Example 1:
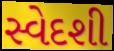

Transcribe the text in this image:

સ્વેદશી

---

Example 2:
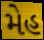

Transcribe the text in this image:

મેહ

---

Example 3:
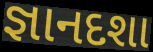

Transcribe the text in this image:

જ્ઞાનદશા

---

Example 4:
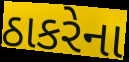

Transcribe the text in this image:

ઠાકરેના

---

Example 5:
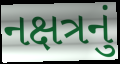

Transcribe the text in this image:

નક્ષત્રનું